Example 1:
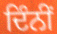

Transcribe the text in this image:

ਦਿੰਨੀਂ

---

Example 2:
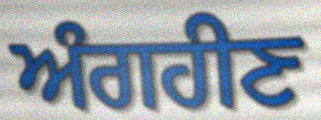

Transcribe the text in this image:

ਅੰਗਹੀਣ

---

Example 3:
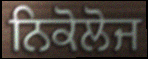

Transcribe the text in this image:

ਨਿਕੋਲੋਜ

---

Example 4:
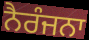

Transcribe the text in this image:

ਨੈਰੰਜਨਾ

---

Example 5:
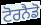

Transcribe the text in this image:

ਟੋਰਨੈਡੋ